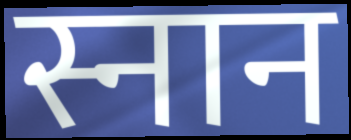
स्‍नान